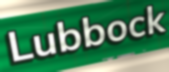
Lubbock